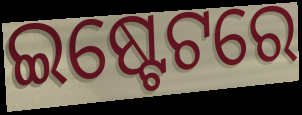
ଇଷ୍ଟେଟରେ